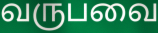
வருபவை